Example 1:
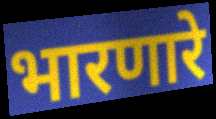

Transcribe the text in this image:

भारणारे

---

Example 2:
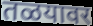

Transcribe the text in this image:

तळयावर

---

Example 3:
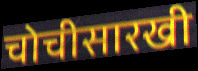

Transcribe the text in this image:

चोचीसारखी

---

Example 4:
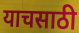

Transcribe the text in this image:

याचसाठी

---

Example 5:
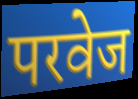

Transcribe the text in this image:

परवेज